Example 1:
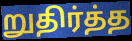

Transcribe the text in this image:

றுதிர்த்த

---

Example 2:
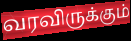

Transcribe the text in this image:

வரவிருக்கும்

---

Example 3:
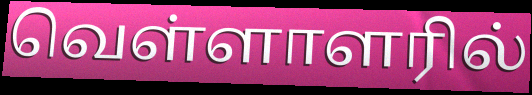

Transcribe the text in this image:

வெள்ளாளரில்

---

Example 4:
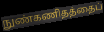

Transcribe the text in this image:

நுண்கணிதத்தைப்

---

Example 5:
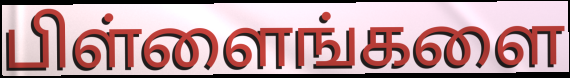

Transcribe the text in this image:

பிள்ளைங்களை